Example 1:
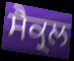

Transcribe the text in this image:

ਸੈਕ੍ਰਲ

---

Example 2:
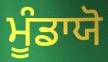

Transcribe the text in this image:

ਮੂੰਡਾਯੋ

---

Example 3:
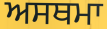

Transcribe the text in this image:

ਅਸਥਮਾ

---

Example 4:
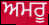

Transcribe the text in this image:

ਅਮਰੂ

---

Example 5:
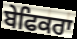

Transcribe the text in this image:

ਬੇਫਿਕਰਾ